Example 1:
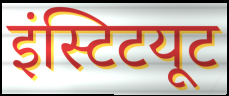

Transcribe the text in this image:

इंस्टिटयूट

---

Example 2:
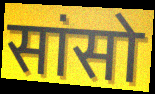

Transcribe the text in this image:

सांसो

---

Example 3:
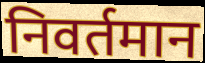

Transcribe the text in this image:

निवर्तमान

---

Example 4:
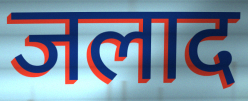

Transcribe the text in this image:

जलाद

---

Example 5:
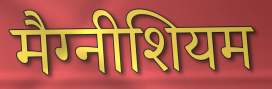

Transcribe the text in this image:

मैग्नीशियम